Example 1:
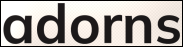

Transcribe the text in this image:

adorns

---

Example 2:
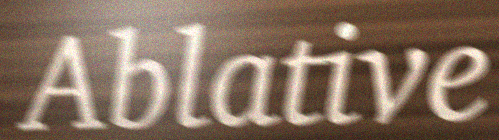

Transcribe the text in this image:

Ablative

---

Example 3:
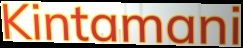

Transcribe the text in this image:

Kintamani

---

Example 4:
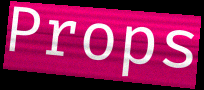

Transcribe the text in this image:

Props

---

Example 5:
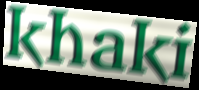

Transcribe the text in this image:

khaki